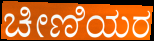
ಚೀಣಿಯರ